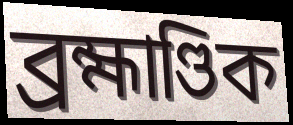
ব্ৰহ্মাণ্ডিক